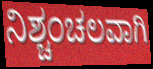
ನಿಶ್ಚಂಚಲವಾಗಿ